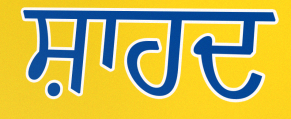
ਸ਼ਾਹਦ